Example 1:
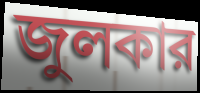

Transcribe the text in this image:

জুলকার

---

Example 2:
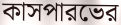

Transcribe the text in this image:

কাসপারভের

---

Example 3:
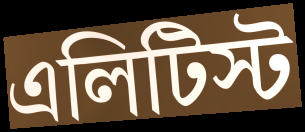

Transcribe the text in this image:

এলিটিস্ট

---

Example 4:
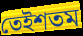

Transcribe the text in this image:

তেইশতম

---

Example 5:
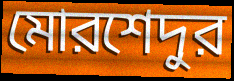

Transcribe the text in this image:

মোরশেদুর